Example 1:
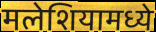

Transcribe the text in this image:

मलेशियामध्ये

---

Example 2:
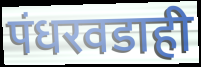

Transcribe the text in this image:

पंधरवडाही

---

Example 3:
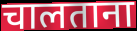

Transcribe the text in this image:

चालताना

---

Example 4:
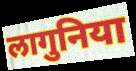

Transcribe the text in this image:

लागुनिया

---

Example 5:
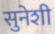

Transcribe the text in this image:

सुनेशी